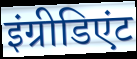
इंग्रीडिएंट